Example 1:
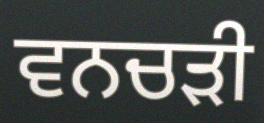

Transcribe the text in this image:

ਵਨਚੜੀ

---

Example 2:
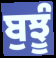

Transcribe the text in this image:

ਬੁਝੂੰ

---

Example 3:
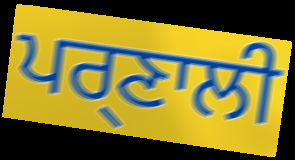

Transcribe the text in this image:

ਪਰ੍ਣਾਲੀ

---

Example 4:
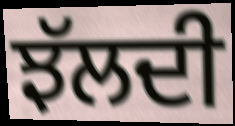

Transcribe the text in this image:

ਝੱਲਦੀ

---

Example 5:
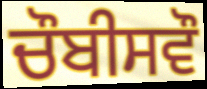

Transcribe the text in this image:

ਚੌਬੀਸਵੌ